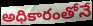
అధికారంతోనే